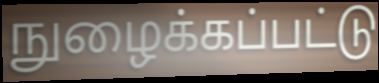
நுழைக்கப்பட்டு